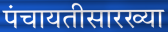
पंचायतीसारख्या